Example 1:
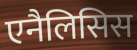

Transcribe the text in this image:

एनैलिसिस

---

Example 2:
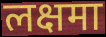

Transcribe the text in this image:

लक्षमा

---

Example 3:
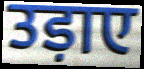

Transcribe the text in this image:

उड़ाए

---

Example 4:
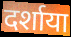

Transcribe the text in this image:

दर्शाया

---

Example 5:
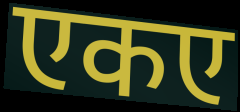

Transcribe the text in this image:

एकए